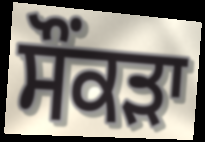
ਸੌਂਕੜਾ